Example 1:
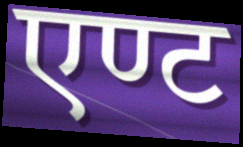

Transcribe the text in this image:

एण्ट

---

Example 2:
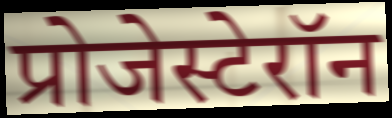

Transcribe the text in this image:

प्रोजेस्टेरॉन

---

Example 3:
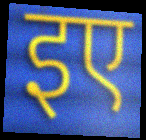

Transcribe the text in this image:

इए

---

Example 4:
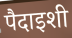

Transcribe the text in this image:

पैदाइशी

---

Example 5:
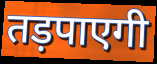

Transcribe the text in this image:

तड़पाएगी